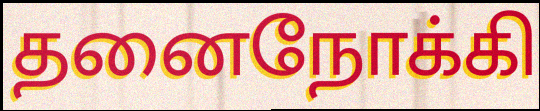
தனைநோக்கி